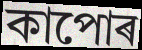
কাপোৰ